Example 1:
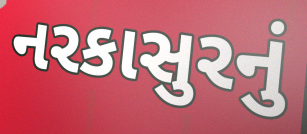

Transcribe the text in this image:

નરકાસુરનું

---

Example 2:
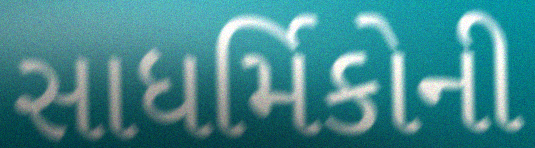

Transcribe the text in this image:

સાધર્મિકોની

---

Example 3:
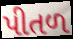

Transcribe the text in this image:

પીતળ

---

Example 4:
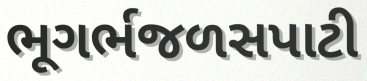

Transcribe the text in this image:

ભૂગર્ભજળસપાટી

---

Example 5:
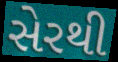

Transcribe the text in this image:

સેરથી